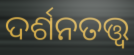
ଦର୍ଶନତତ୍ତ୍ଵ